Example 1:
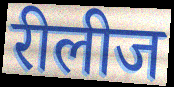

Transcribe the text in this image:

रीलीज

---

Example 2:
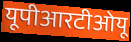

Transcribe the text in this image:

यूपीआरटीओयू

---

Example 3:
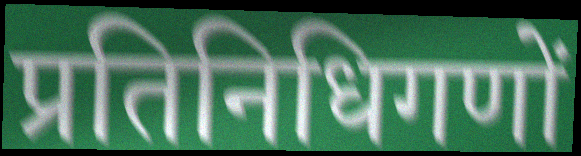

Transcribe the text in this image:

प्रतिनिधिगणों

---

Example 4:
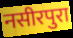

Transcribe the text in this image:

नसीरपुरा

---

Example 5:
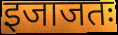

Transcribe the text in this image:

इजाजतः